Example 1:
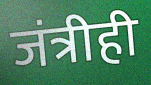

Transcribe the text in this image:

जंत्रीही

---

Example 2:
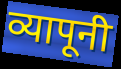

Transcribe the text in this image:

व्यापूनी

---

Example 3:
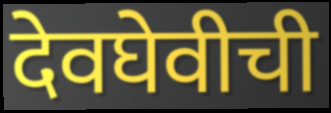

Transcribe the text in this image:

देवघेवीची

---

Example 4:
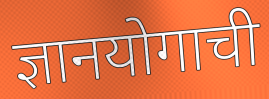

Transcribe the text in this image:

ज्ञानयोगाची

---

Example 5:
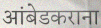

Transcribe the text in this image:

आंबेडकराना